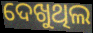
ଦେଖୁଥିଲ